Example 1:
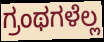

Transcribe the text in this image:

ಗ್ರಂಥಗಳೆಲ್ಲ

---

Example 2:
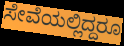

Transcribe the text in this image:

ಸೇವೆಯಲ್ಲಿದ್ದರೂ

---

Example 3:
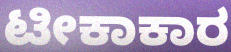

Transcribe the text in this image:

ಟೀಕಾಕಾರ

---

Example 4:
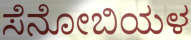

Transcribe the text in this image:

ಸೆನೋಬಿಯಳ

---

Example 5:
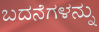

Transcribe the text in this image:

ಬದನೆಗಳನ್ನು